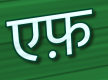
एफ़